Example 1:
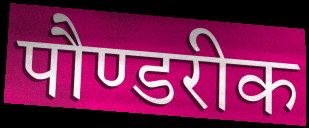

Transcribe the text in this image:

पौण्डरीक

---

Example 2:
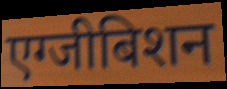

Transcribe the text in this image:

एग्जीबिशन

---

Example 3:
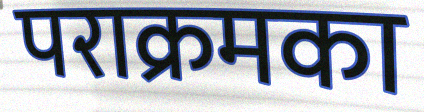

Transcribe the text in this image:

पराक्रमका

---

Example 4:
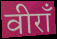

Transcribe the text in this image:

वीराँ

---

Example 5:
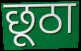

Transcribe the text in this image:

छूठा